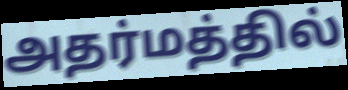
அதர்மத்தில்